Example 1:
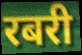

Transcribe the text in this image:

रबरी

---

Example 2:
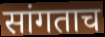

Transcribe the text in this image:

सांगताच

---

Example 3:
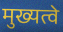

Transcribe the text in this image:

मुख्यत्वे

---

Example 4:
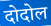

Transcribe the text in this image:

दोदोल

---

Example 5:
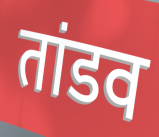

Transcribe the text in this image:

तांडव